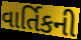
વાર્તિકની